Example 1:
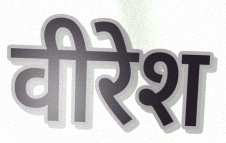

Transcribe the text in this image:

वीरेश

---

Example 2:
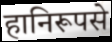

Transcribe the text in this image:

हानिरूपसे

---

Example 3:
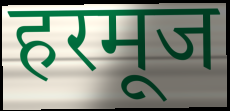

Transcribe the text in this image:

हरमूज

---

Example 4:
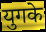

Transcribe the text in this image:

युगके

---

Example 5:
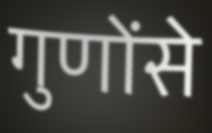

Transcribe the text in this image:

गुणोंसे